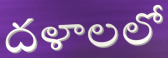
దళాలలో